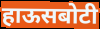
हाऊसबोटी